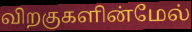
விறகுகளின்மேல்